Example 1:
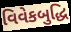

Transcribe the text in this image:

વિવેકબુદ્ધિ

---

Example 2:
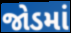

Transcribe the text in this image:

જોડમાં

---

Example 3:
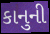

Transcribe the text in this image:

કાનુની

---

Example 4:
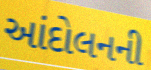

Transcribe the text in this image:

આંદોલનની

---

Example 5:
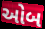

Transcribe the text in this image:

ઓબ